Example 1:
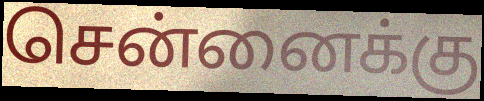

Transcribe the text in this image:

சென்னைக்கு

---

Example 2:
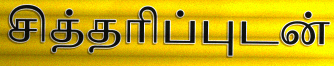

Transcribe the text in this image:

சித்தரிப்புடன்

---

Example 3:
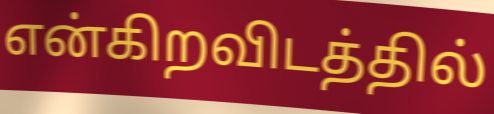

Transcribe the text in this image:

என்கிறவிடத்தில்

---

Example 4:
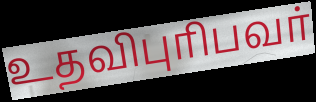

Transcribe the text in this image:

உதவிபுரிபவர்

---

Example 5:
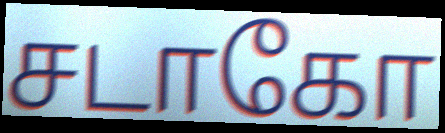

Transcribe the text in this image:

சடாகோ